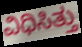
ವಿಧಿಸಿತ್ತು